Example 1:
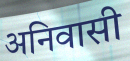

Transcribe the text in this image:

अनिवासी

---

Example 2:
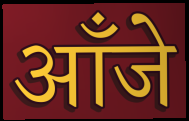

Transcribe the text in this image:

आँजे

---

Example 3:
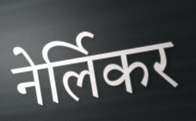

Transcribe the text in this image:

नेर्लिकर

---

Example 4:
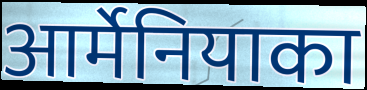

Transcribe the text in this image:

आर्मेनियाका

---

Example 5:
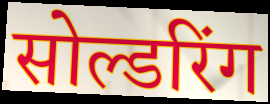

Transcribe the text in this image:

सोल्डरिंग